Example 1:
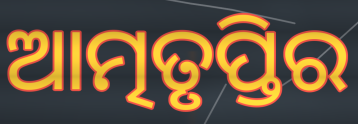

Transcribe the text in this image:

ଆତ୍ମତୃପ୍ତିର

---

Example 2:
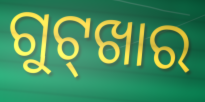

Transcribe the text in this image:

ଗୁଟ୍‌ଖାର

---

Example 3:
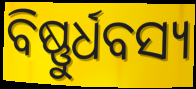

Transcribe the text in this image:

ବିଷ୍ଣୁର୍ଧବସ୍ୟ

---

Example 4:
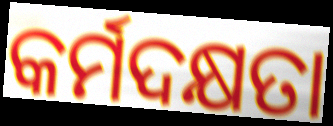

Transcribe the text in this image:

କର୍ମଦକ୍ଷତା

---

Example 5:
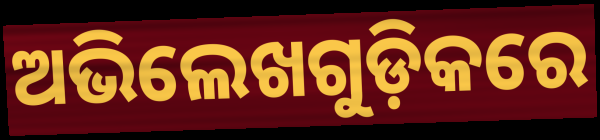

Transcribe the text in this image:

ଅଭିଲେଖଗୁଡ଼ିକରେ